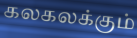
கலகலக்கும்